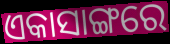
ଏକାସାଙ୍ଗରେ